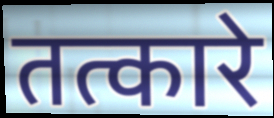
तत्कारे